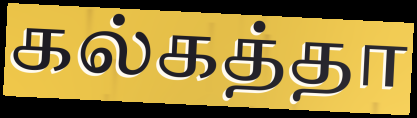
கல்கத்தா